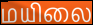
மயிலை